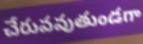
చేరువవుతుండగా